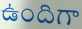
ఉందిగా